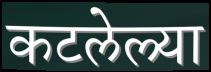
कटलेल्या